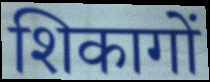
शिकागों